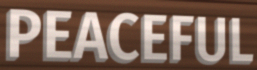
PEACEFUL